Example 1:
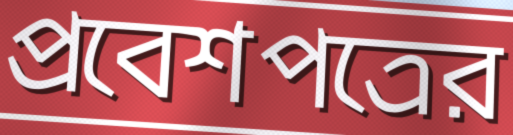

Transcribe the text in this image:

প্রবেশপত্রের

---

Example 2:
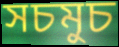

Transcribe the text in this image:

সচমুচ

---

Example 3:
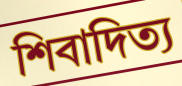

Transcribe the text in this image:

শিবাদিত্য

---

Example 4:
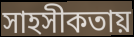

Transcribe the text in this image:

সাহসীকতায়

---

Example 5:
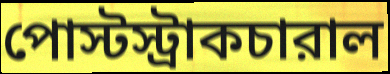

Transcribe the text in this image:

পোস্টস্ট্রাকচারাল